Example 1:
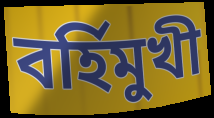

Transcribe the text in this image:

বর্হিমুখী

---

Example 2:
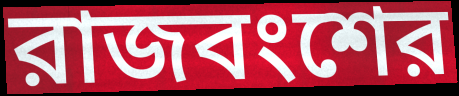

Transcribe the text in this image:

রাজবংশের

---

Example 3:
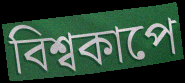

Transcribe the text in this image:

বিশ্বকাপে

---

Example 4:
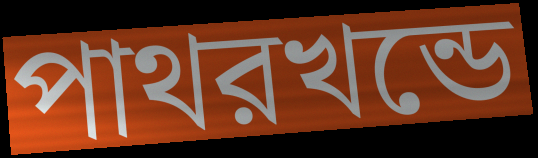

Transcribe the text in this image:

পাথরখন্ডে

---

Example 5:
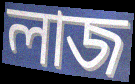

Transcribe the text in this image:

লাজ